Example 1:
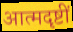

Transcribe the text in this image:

आत्मदृष्टीं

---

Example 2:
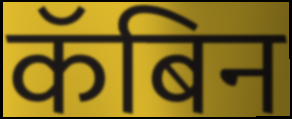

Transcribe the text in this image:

कॅबिन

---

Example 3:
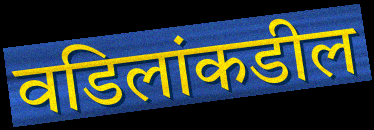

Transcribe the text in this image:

वडिलांकडील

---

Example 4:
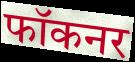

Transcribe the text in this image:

फॉकनर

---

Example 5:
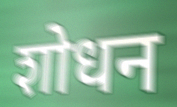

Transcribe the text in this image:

शोधन